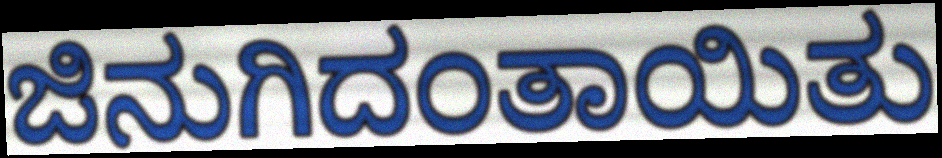
ಜಿನುಗಿದಂತಾಯಿತು